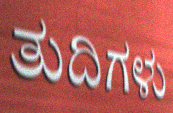
ತುದಿಗಳು